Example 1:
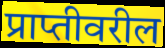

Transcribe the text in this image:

प्राप्तीवरील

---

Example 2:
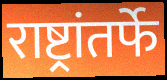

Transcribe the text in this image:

राष्ट्रांतर्फे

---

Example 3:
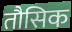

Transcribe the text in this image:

तौसिक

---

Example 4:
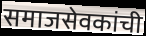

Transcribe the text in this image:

समाजसेवकांची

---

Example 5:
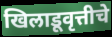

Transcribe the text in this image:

खिलाडूवृत्तीचे